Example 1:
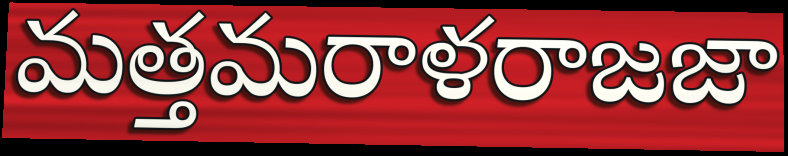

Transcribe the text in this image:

మత్తమరాళరాజజా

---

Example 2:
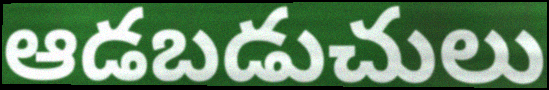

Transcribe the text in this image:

ఆడబడుచులు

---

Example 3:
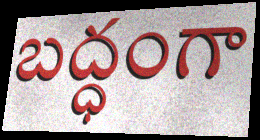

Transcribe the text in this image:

బద్ధంగా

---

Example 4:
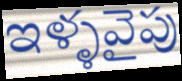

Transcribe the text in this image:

ఇళ్ళవైపు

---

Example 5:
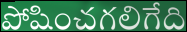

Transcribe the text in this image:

పోషించగలిగేది